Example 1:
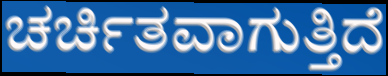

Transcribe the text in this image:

ಚರ್ಚಿತವಾಗುತ್ತಿದೆ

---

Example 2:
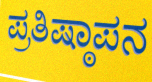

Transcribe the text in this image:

ಪ್ರತಿಷ್ಠಾಪನ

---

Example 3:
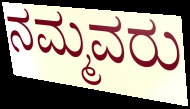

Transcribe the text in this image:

ನಮ್ಮವರು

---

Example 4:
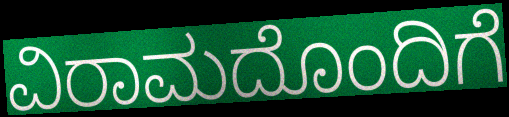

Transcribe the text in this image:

ವಿರಾಮದೊಂದಿಗೆ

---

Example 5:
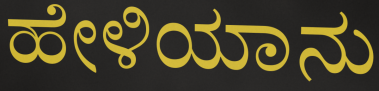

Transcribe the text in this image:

ಹೇಳಿಯಾನು